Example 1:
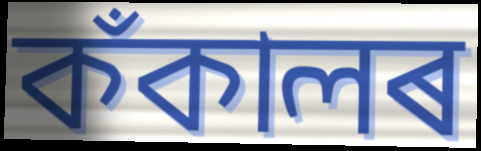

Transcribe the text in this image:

কঁকালৰ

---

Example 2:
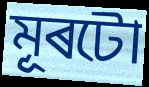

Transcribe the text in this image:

মূৰটো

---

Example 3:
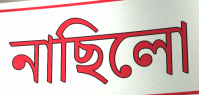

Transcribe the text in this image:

নাছিলো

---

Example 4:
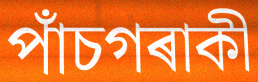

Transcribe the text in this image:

পাঁচগৰাকী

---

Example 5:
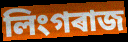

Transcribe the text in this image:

লিংগৰাজ